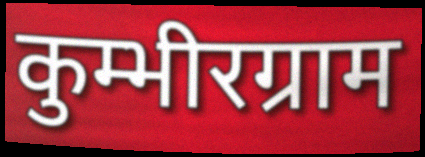
कुम्भीरग्राम